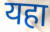
यहा